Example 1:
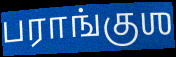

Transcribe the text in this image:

பராங்குஶ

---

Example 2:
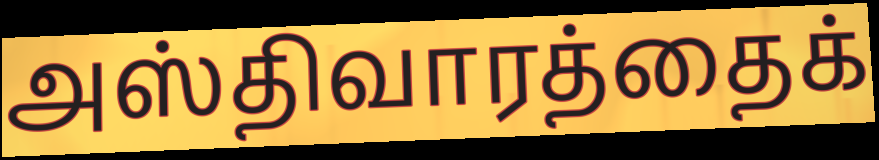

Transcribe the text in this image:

அஸ்திவாரத்தைக்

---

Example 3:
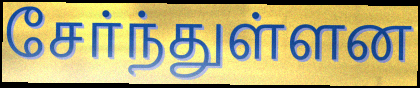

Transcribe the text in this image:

சேர்ந்துள்ளன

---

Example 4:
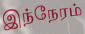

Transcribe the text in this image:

இந்நேரம்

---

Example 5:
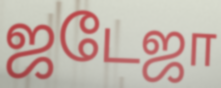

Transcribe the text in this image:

ஜடேஜா